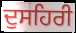
ਦੁਸਹਿਰੀ